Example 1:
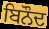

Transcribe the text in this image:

ਬਿਨੌਦ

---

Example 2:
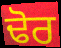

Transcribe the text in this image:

ਢੋਰ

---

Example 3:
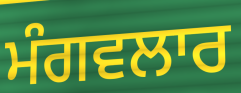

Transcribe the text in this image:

ਮੰਗਵਲਾਰ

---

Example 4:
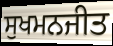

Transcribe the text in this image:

ਸੁਖਮਨਜੀਤ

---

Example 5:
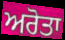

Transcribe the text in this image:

ਅਰੋਤਾ